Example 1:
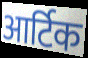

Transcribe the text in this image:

आर्टिक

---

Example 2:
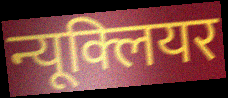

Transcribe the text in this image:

न्‍यूक्‍लियर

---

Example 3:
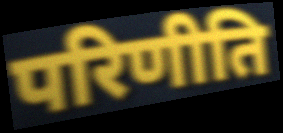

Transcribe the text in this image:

परिणीति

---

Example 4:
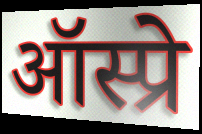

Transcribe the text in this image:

ऑस्प्रे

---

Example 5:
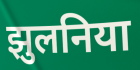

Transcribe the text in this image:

झुलनिया